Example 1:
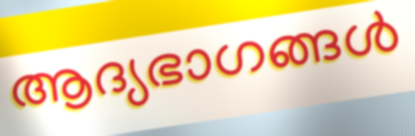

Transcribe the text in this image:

ആദ്യഭാഗങ്ങൾ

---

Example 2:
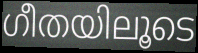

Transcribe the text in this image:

ഗീതയിലൂടെ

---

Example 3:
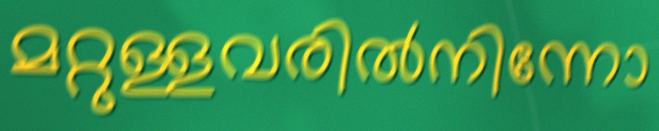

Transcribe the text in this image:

മറ്റുള്ളവരിൽനിന്നോ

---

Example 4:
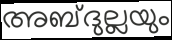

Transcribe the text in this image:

അബ്ദുല്ലയും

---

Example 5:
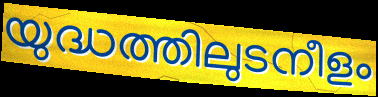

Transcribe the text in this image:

യുദ്ധത്തിലുടനീളം